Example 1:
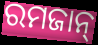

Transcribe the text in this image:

ରମଜାନ୍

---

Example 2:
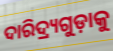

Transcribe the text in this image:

ଦାରିଦ୍ର୍ୟଗୁଡ଼ାକୁ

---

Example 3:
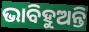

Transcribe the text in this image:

ଭାବିହୁଅନ୍ତି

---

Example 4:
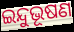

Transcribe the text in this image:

ଇନ୍ଦୁଭୂଷଣ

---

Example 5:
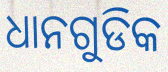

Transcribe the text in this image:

ଧାନଗୁଡିକ